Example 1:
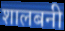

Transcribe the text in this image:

शालबनी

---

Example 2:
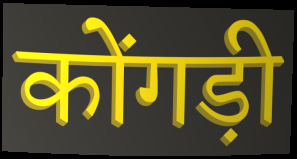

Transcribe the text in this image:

कोंगड़ी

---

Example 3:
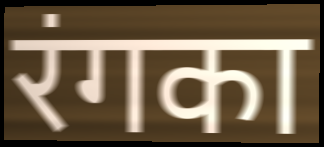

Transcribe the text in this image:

रंगका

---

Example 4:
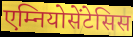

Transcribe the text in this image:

एम्नियोसेंटेसिस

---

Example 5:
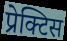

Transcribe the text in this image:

प्रेक्टिस